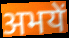
अभयें